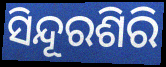
ସିନ୍ଦୂରଶିରି